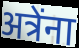
अत्रेंना